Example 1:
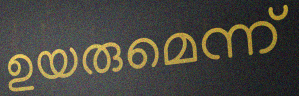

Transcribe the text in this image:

ഉയരുമെന്ന്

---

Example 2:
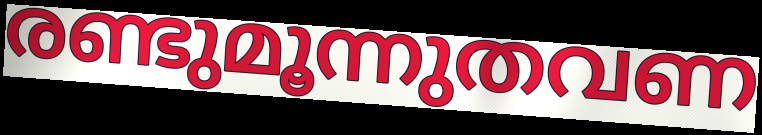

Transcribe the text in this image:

രണ്ടുമൂന്നുതവണ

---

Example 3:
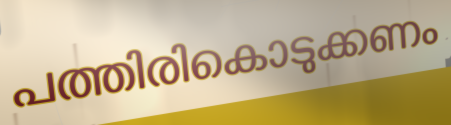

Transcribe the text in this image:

പത്തിരികൊടുക്കണം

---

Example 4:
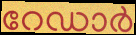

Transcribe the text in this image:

റേഡാർ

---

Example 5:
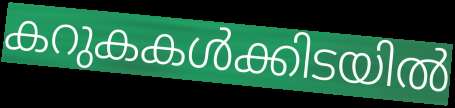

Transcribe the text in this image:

കറുകകൾക്കിടയിൽ